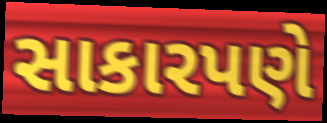
સાકારપણે